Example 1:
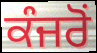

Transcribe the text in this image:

ਕੰਜਰੋਂ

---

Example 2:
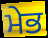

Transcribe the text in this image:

ਮੇਭ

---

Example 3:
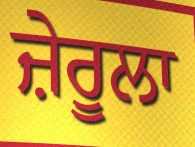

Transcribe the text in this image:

ਜ਼ੇਰੂਲਾ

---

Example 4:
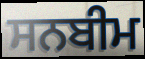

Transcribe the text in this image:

ਸਨਬੀਮ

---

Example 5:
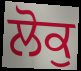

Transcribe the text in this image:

ਲੋਕੁ